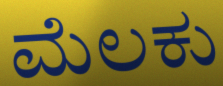
ಮೆಲಕು